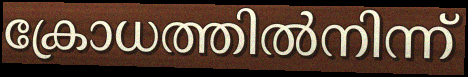
ക്രോധത്തിൽനിന്ന്